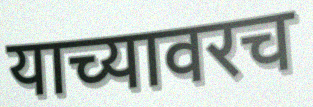
याच्यावरच